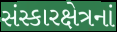
સંસ્કારક્ષેત્રનાં